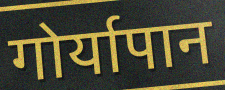
गोर्यापान